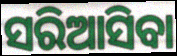
ସରିଆସିବା